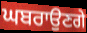
ਘਬਰਾਉਣਗੇ